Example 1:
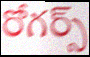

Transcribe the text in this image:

రోగర్స్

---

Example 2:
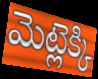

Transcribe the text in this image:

మెట్లెక్కి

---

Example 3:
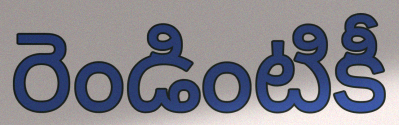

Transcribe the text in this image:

రెండింటికీ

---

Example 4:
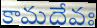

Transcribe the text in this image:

కామదేవః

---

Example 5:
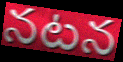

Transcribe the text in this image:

నటన